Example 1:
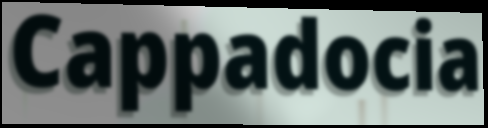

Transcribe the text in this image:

Cappadocia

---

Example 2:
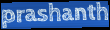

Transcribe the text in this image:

prashanth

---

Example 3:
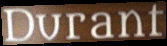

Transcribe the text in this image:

Durant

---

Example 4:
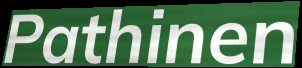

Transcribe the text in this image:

Pathinen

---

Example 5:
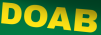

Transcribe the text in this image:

DOAB